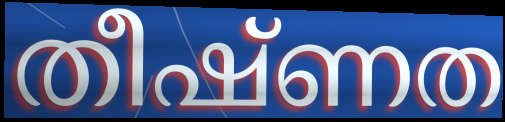
തീഷ്ണത